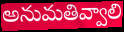
అనుమతివ్వాలి